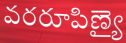
వరరూపిణ్యై